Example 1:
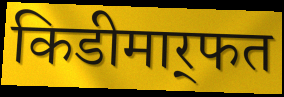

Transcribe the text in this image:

किडीमार्फत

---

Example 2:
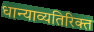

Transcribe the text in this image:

धान्याव्यतिरिक्त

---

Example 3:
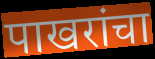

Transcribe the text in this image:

पाखरांचा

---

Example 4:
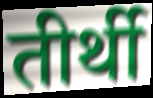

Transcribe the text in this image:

तीर्थी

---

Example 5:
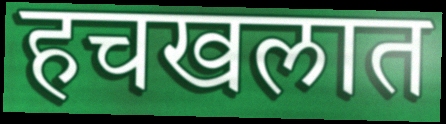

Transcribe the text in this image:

हचखलात